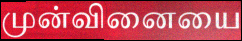
முன்வினையை